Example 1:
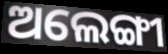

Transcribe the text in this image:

ଅଲେଙ୍ଗୀ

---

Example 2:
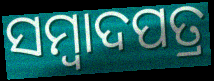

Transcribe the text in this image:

ସମ୍ବାଦପତ୍ର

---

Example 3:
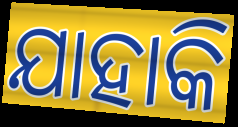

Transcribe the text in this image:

ଯାହାକି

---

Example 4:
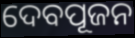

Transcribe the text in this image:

ଦେବପୂଜନ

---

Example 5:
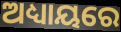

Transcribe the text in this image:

ଅଧ୍ୟାୟରେ